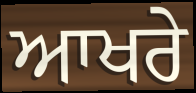
ਆਖਰੇ